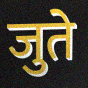
जुते